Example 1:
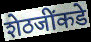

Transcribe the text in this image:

शेठजींकडे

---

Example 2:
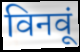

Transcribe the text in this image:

विनवूं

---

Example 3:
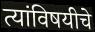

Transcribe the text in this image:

त्यांविषयीचे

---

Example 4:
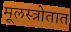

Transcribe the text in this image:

मूलस्त्रोतात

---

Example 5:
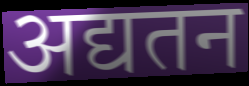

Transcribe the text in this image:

अद्यतन